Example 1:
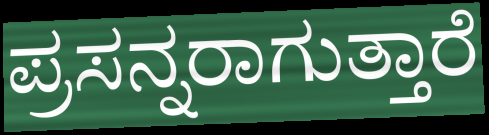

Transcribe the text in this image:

ಪ್ರಸನ್ನರಾಗುತ್ತಾರೆ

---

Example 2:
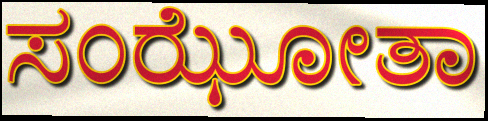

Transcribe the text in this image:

ಸಂಝೋತಾ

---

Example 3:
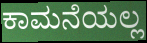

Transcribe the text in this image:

ಕಾಮನೆಯಲ್ಲ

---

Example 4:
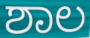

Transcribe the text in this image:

ಶಾಲ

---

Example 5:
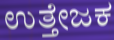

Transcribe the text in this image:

ಉತ್ತೇಜಕ